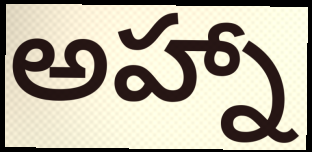
అహ్నా